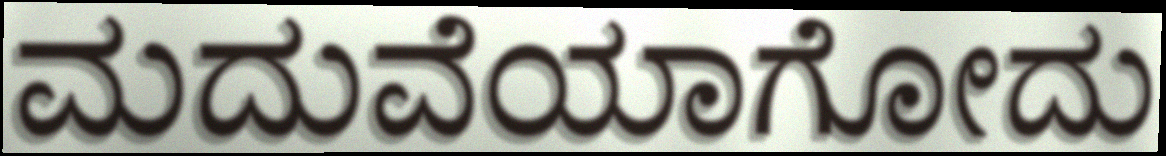
ಮದುವೆಯಾಗೋದು